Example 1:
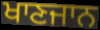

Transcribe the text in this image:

ਖਾਣਜਾਨ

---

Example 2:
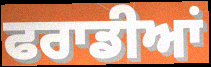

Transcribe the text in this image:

ਫਰਾਡੀਆਂ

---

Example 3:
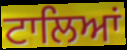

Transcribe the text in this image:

ਟਾਲਿਆਂ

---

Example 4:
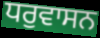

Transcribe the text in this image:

ਧਰੁਵਾਸਨ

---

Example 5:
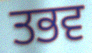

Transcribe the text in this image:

ਤਭਵ